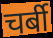
चर्बी